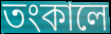
তংকালে